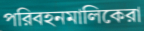
পরিবহনমালিকেরা